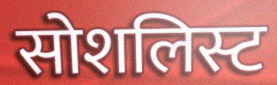
सोशलिस्‍ट